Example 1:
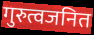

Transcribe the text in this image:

गुरुत्वजनित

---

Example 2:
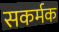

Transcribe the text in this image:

सकर्मक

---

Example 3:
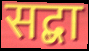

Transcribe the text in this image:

सद्बा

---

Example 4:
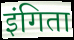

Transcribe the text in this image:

इंगिता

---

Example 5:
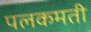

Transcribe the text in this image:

पलकमती